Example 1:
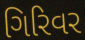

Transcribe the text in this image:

ગિરિવર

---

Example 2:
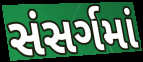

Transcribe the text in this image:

સંસર્ગમાં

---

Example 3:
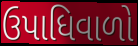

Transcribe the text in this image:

ઉપાધિવાળો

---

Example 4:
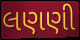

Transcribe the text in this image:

લણણી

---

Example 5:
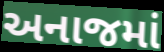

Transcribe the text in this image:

અનાજમાં